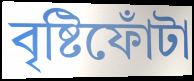
বৃষ্টিফোঁটা